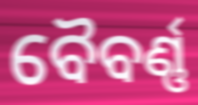
ବୈବର୍ଣ୍ଣ